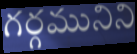
గర్గమునిని